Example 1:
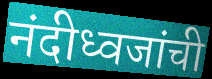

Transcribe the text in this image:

नंदीध्वजांची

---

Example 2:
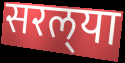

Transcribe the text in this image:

सरल्या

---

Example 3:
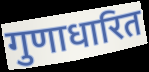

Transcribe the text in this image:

गुणाधारित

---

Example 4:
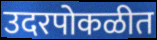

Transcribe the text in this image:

उदरपोकळीत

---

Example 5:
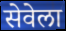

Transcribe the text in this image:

सेवेला